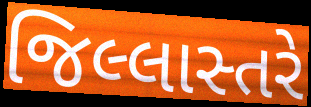
જિલ્લાસ્તરે